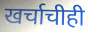
खर्चाचीही